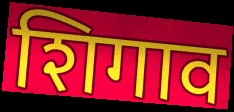
शिगाव